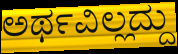
ಅರ್ಥವಿಲ್ಲದ್ದು